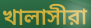
খালাসীরা